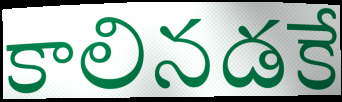
కాలినడకే